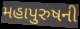
મહાપુરુષની